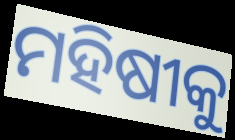
ମହିଷୀକୁ